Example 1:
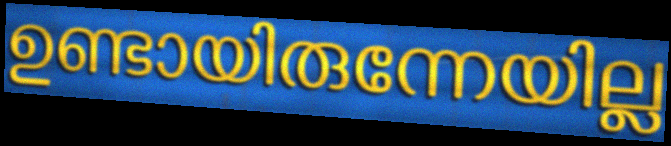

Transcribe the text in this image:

ഉണ്ടായിരുന്നേയില്ല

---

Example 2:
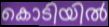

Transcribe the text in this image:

കൊടിയിൽ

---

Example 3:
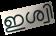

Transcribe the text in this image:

ഇശ്വി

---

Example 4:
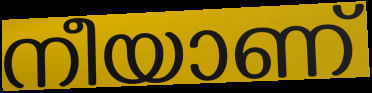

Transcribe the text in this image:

നീയാണ്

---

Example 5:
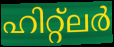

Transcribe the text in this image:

ഹിറ്റ്ലർ